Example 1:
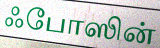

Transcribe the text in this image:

ஃபோஸின்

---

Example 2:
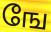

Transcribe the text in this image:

ஙே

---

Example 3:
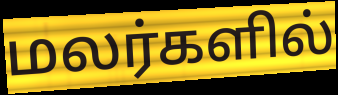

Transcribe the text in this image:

மலர்களில்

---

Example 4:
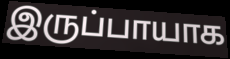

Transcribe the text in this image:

இருப்பாயாக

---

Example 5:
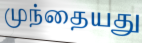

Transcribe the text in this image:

முந்தையது